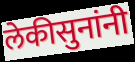
लेकीसुनांनी